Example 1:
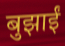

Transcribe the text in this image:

बुझाईं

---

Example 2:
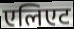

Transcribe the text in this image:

एलिएट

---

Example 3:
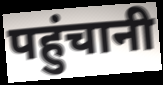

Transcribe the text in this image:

पहुंचानी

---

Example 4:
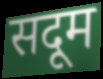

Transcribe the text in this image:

सदूम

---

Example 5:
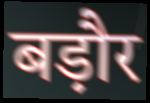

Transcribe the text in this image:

बड़ौर